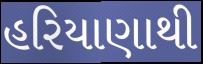
હરિયાણાથી